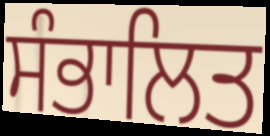
ਸੰਭਾਲਿਤ